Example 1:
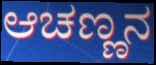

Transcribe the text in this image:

ಆಚಣ್ಣನ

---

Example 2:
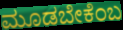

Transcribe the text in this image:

ಮೂಡಬೇಕೆಂಬ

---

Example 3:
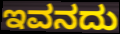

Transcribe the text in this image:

ಇವನದು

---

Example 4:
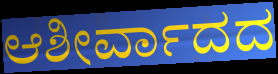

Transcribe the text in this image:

ಆಶೀರ್ವಾದದ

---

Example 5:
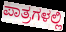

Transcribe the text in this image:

ಪಾತ್ರಗಳಲ್ಲಿ